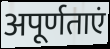
अपूर्णताएं